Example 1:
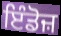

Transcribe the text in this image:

ਇੰਡੋਜ਼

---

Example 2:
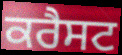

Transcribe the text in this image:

ਕਰੈਸਟ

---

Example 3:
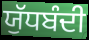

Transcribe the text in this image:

ਯੁੱਧਬੰਦੀ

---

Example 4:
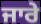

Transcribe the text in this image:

ਜਾਰੇ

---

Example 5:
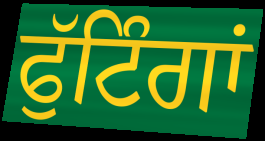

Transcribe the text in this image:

ਫੁੱਟਿੰਗਾਂ